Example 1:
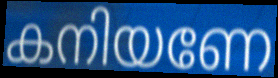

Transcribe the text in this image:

കനിയണേ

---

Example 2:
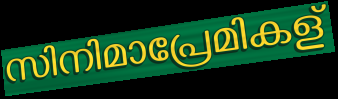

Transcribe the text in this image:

സിനിമാപ്രേമികള്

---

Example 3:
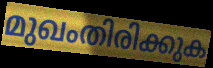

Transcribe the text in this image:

മുഖംതിരിക്കുക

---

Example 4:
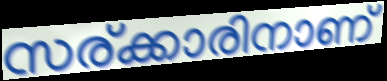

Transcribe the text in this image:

സര്ക്കാരിനാണ്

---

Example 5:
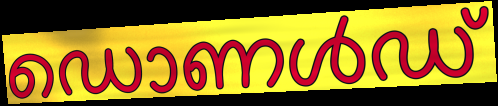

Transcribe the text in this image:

ഡൊണൾഡ്